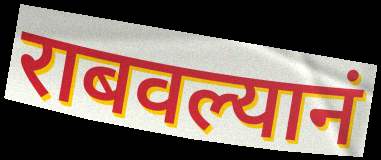
राबवल्यानं